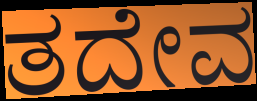
ತದೇವ